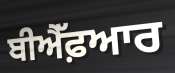
ਬੀਐੱਫ਼ਆਰ